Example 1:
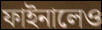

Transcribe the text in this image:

ফাইনালেও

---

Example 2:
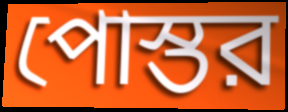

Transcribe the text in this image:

পোস্তর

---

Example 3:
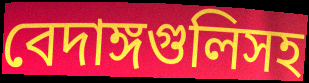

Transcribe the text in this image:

বেদাঙ্গগুলিসহ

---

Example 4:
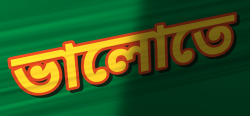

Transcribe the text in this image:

ভালোতে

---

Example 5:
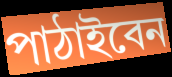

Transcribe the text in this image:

পাঠাইবেন